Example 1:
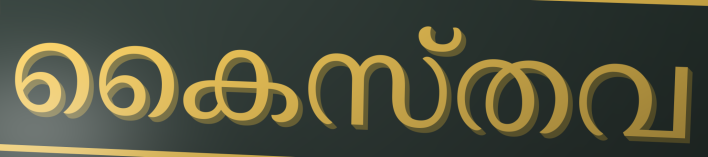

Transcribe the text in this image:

കൈസ്തവ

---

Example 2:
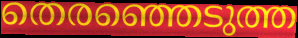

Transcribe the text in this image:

തെരഞ്ഞെടുത്ത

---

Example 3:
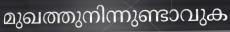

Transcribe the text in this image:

മുഖത്തുനിന്നുണ്ടാവുക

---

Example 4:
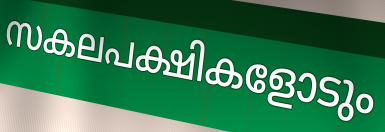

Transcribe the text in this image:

സകലപക്ഷികളോടും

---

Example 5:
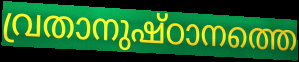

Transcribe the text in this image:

വ്രതാനുഷ്ഠാനത്തെ